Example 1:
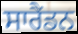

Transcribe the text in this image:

ਸਾਰੈਂਡਨ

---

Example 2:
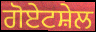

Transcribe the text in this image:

ਗੋਏਟਸ਼ੇਲ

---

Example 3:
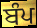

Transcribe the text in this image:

ਬੰਪ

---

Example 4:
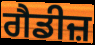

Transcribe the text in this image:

ਗੈਡੀਜ਼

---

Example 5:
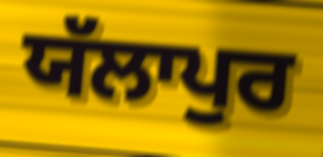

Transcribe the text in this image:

ਯੱਲਾਪੁਰ